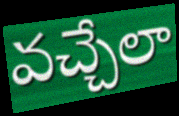
వచ్చేలా